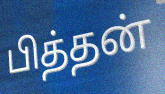
பித்தன்